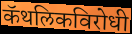
कॅथलिकविरोधी